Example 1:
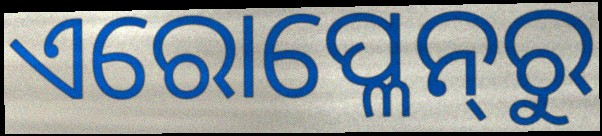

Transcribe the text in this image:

ଏରୋପ୍ଳେନ୍‍ରୁ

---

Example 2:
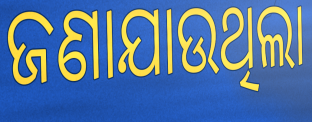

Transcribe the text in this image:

ଜଣାଯାଉଥିଲା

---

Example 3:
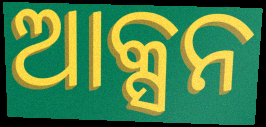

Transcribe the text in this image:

ଆକ୍ସନ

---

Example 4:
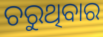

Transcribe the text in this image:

ଚରୁଥିବାର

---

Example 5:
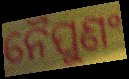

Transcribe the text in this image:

ନୈପୁଣଂ